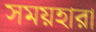
সময়হারা